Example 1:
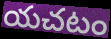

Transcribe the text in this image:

యచటం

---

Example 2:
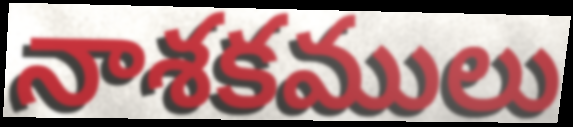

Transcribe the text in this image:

నాశకములు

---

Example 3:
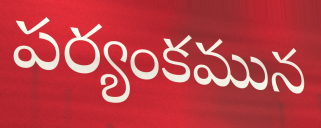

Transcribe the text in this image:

పర్యంకమున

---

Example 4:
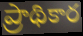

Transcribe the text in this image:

ప్రాథికార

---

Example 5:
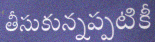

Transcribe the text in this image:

తీసుకున్నప్పటికీ